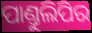
ପାଣ୍ତୁଲିପିର